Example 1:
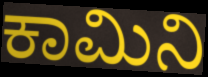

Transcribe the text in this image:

ಕಾಮಿನಿ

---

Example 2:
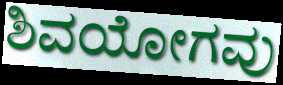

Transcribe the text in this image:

ಶಿವಯೋಗವು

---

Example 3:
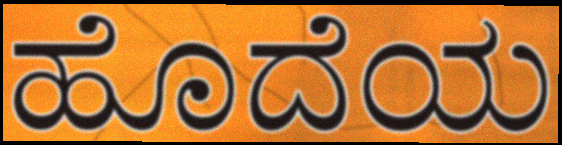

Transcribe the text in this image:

ಹೊದೆಯ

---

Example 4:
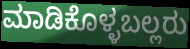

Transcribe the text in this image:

ಮಾಡಿಕೊಳ್ಳಬಲ್ಲರು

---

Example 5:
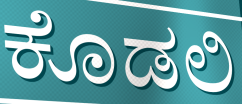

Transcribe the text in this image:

ಕೊಡಲಿ